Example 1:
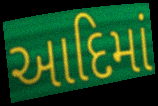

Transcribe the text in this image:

આદિમાં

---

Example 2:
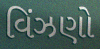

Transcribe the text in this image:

વિંઝણો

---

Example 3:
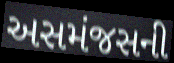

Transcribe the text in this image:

અસમંજસની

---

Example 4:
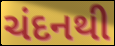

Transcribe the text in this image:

ચંદનથી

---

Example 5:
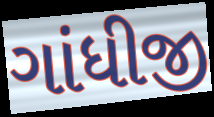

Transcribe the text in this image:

ગાંધીજી